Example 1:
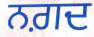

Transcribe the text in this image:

ਨਗ਼ਦ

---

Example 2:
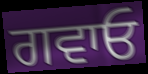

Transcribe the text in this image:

ਗਵਾਓ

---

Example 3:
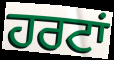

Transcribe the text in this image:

ਹਰਟਾਂ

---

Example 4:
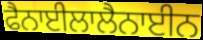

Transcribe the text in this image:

ਫੈਨਾਈਲਾਲੈਨਾਈਨ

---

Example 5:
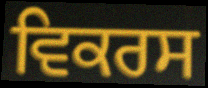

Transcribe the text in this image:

ਵਿਕਰਸ